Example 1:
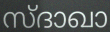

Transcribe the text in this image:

സ്ദാഖാ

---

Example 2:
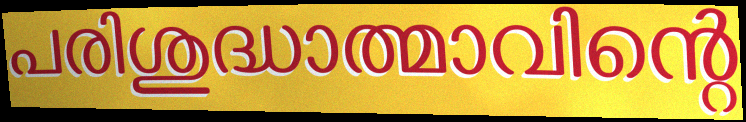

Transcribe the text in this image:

പരിശുദ്ധാത്മാവിന്റെ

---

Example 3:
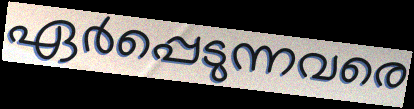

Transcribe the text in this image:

ഏർപ്പെടുന്നവരെ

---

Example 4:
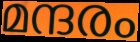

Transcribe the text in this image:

മന്ദരം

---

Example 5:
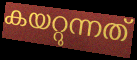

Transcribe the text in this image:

കയറ്റുന്നത്